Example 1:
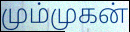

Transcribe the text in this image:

மும்முகன்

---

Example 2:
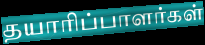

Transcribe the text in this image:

தயாரிப்பாளர்கள்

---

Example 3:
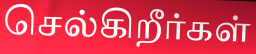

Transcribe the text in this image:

செல்கிறீர்கள்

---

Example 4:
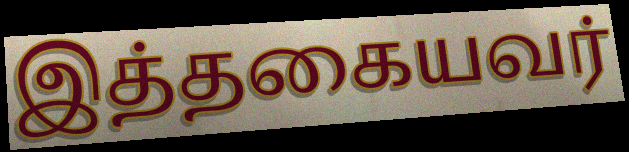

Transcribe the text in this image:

இத்தகையவர்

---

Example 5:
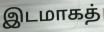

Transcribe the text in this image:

இடமாகத்